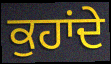
ਕੁਹਾਂਦੇ